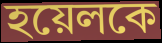
হয়েলকে